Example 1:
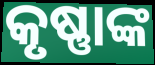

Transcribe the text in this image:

କୃଷ୍ଣାଙ୍କ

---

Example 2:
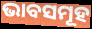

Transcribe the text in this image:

ଭାବସମୂହ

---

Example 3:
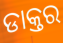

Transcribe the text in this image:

ଡାକ୍ତର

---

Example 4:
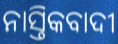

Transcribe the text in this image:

ନାସ୍ତିକବାଦୀ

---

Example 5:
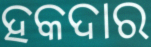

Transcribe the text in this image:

ହକଦାର